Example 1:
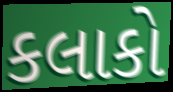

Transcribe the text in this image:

કલાકો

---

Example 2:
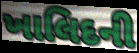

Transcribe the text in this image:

ખાલિદની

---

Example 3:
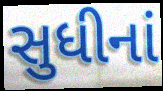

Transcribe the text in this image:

સુધીનાં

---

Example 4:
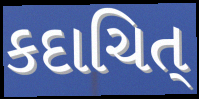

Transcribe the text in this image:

કદાચિત્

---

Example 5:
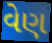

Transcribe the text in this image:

વેણ